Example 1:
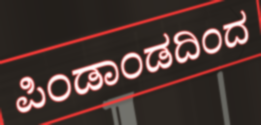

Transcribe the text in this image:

ಪಿಂಡಾಂಡದಿಂದ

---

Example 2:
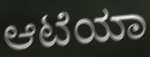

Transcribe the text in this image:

ಆಟೆಯಾ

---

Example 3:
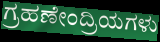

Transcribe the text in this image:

ಗ್ರಹಣೇಂದ್ರಿಯಗಳು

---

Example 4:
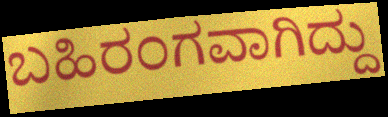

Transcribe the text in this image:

ಬಹಿರಂಗವಾಗಿದ್ದು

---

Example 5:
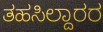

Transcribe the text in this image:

ತಹಸಿಲ್ದಾರರ